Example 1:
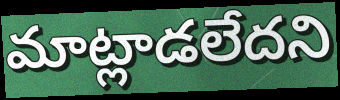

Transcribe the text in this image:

మాట్లాడలేదని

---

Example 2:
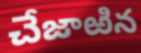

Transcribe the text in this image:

చేజాఱిన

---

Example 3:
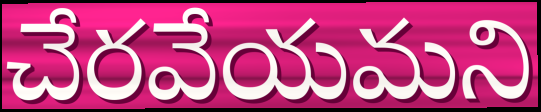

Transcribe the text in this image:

చేరవేయమని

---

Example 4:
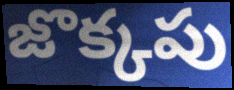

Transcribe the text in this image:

జొక్కపు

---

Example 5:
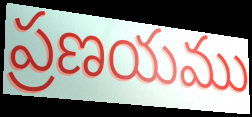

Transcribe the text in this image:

ప్రణయము